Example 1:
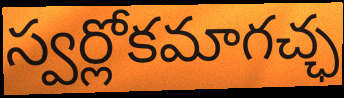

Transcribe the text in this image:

స్వర్లోకమాగచ్ఛ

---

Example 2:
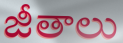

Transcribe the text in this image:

జీతాలు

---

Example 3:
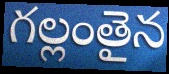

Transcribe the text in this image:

గల్లంతైన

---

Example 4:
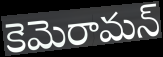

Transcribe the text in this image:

కెమెరామన్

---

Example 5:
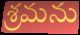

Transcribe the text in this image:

శ్రమను